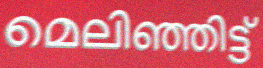
മെലിഞ്ഞിട്ട്